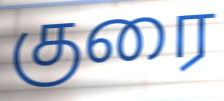
குரை